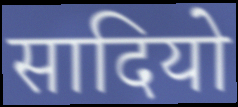
सादियो